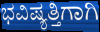
ಭವಿಷ್ಯತ್ತಿಗಾಗಿ